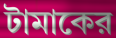
টামাকের